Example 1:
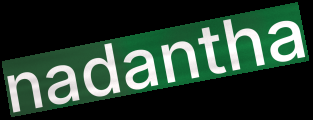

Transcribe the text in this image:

nadantha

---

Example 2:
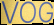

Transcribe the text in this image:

VOG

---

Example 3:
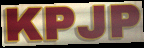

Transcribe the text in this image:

KPJP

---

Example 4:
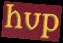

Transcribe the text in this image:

hup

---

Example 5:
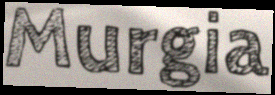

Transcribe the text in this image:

Murgia